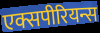
एक्सपीरियन्स